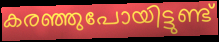
കരഞ്ഞുപോയിട്ടുണ്ട്